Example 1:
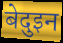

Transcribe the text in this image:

बेदुइन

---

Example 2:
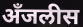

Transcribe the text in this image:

अँजलीस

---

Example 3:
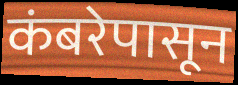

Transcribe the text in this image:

कंबरेपासून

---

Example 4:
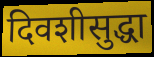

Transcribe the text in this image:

दिवशीसुद्धा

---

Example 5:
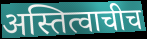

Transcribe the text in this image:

अस्तित्वाचीच